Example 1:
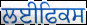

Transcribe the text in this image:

ਲਈਫਿਕਸ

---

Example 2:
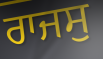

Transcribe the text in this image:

ਰਾਜਸੁ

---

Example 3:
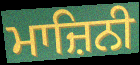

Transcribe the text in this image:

ਮਾਜ਼ਿਨੀ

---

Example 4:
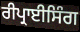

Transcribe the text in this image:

ਰੀਪ੍ਰਾਈਸਿੰਗ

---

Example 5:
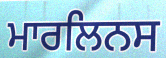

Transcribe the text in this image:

ਮਾਰਲਿਨਸ